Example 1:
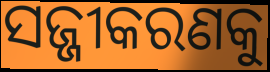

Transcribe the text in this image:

ସଜ୍ଜୀକରଣକୁ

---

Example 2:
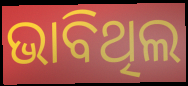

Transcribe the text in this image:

ଭାବିଥିଲ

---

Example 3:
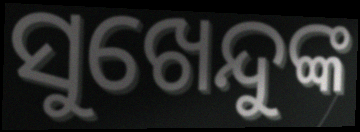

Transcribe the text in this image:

ସୁଖେନ୍ଦୁଙ୍କ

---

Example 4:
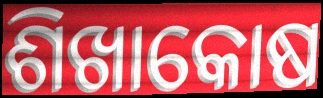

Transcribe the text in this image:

ଶିଖାକୋଷ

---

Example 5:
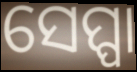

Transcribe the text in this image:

ସେପ୍ପା